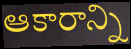
ఆకారాన్ని